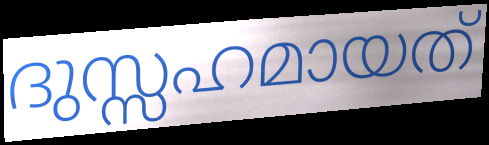
ദുസ്സഹമായത്